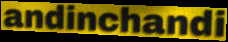
andinchandi